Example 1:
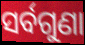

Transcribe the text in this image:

ସର୍ବଗୁଣା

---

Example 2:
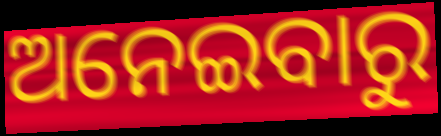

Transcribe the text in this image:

ଅନେଇବାରୁ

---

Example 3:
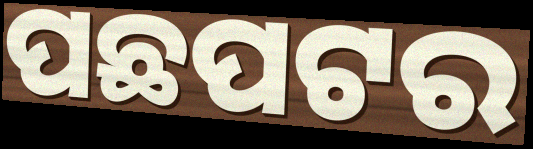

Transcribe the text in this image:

ପଛପଟର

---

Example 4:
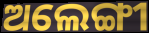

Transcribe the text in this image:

ଅଲେଙ୍ଗୀ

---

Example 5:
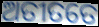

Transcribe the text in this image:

ଅତୀତତେ